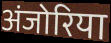
अंजोरिया